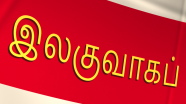
இலகுவாகப்